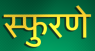
स्फुरणे